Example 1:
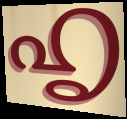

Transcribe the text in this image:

ഹൃ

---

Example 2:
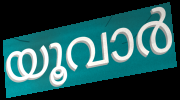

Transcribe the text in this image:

യൂവാർ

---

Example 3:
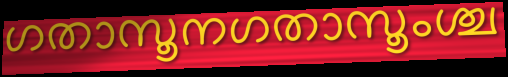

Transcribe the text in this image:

ഗതാസൂനഗതാസൂംശ്ച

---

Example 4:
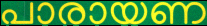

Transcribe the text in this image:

പാരായണ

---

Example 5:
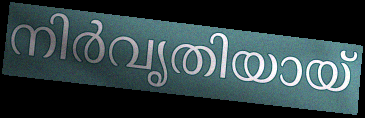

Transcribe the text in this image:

നിർവൃതിയായ്